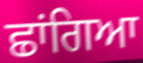
ਛਾਂਗਿਆ